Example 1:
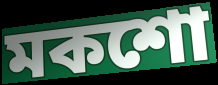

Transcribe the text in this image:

মকশো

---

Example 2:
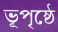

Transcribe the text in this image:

ভূপৃষ্ঠে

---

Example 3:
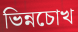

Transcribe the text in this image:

ভিন্নচোখ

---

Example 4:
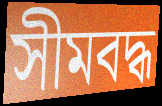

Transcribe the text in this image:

সীমবদ্ধ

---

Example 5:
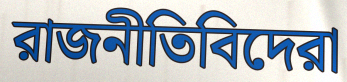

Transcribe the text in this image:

রাজনীতিবিদেরা